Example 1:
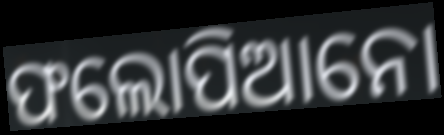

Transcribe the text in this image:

ଫଲୋପିଆନୋ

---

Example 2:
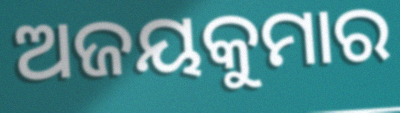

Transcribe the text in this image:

ଅଜୟକୁମାର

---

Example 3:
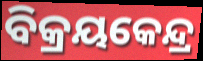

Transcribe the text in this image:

ବିକ୍ରୟକେନ୍ଦ୍ର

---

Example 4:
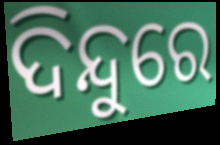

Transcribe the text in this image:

ଦିନ୍ଦୁରେ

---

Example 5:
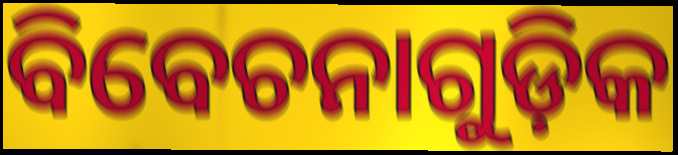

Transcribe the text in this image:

ବିବେଚନାଗୁଡ଼ିକ